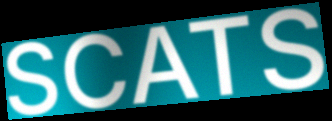
SCATS